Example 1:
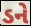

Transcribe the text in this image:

ડને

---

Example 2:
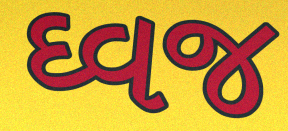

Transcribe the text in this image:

ઘ્વજ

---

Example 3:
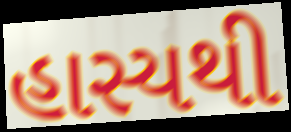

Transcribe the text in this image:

હાસ્યથી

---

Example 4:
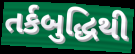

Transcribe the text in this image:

તર્કબુદ્ધિથી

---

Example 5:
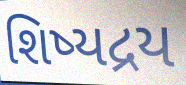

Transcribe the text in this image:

શિષ્યદ્રય